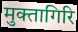
मुक्तागिरि